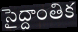
సైద్దాంతిక